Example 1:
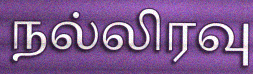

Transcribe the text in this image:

நல்லிரவு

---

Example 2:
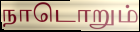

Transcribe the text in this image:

நாடொறும்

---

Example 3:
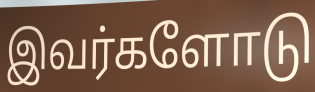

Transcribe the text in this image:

இவர்களோடு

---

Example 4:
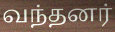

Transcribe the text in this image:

வந்தனர்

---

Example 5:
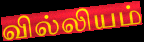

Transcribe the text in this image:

வில்லியம்